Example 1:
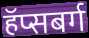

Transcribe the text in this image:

हॅप्सबर्ग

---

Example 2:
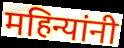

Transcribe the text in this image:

महिन्यांनी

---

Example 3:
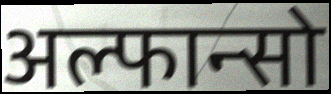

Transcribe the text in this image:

अल्फान्सो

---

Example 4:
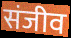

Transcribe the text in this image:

संजीव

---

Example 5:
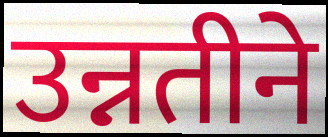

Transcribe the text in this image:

उन्नतीने